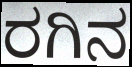
ರಗಿನ